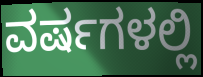
ವರ್ಷಗಳಲ್ಲಿ